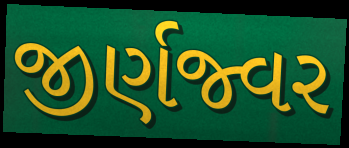
જીર્ણજ્વર